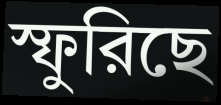
স্ফুরিছে